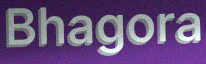
Bhagora